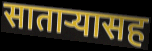
साताऱ्यासह